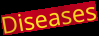
Diseases